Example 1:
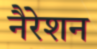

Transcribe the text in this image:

नैरेशन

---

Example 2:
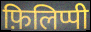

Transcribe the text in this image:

फ़िलिप्पी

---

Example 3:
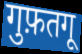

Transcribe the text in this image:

गुफ़तगू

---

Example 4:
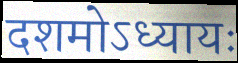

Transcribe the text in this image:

दशमोऽध्यायः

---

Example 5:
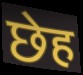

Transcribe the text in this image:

छेह